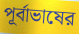
পূর্বাভাষের